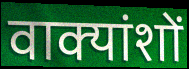
वाक्यांशों